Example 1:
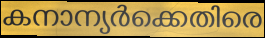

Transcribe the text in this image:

കനാന്യർക്കെതിരെ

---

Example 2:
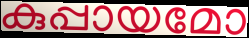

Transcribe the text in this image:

കുപ്പായമോ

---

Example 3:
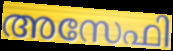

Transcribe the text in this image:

അസേഫി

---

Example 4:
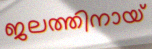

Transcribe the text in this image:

ജലത്തിനായ്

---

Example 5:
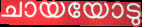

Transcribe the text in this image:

ചായയോടു